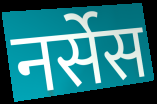
नर्सेस